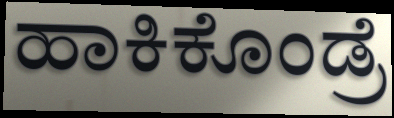
ಹಾಕಿಕೊಂಡ್ರೆ